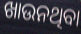
ଖାଉନଥିବା